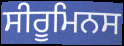
ਸੀਰੂਮਿਨਸ